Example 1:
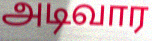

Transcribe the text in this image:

அடிவார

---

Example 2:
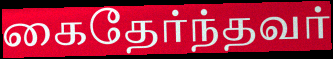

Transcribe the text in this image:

கைதேர்ந்தவர்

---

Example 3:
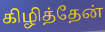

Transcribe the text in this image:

கிழித்தேன்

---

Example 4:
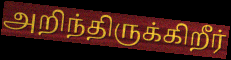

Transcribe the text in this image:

அறிந்திருக்கிறீர்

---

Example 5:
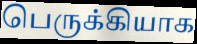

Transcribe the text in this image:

பெருக்கியாக